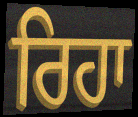
ਰਿਹਾ